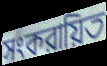
সংকরায়িত